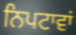
ਨਿਪਟਾਵਾਂ